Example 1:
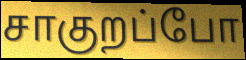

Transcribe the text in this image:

சாகுறப்போ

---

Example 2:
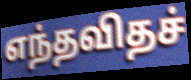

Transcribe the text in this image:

எந்தவிதச்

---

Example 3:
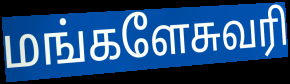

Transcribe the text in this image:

மங்களேசுவரி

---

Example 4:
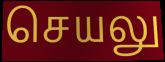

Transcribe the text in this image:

செயலு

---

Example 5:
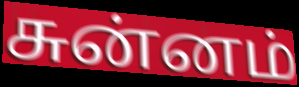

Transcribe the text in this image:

சுன்னம்